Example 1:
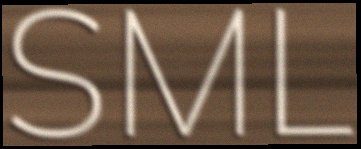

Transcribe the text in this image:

SML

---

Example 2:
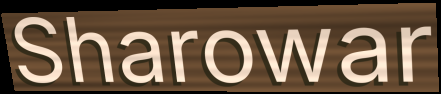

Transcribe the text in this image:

Sharowar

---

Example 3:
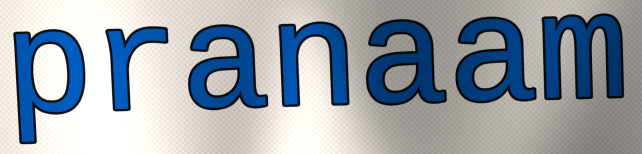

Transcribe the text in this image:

pranaam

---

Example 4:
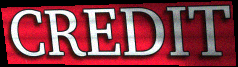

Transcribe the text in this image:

CREDIT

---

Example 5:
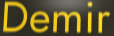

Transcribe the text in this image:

Demir